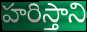
హరిస్తాని